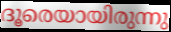
ദൂരെയായിരുന്നു